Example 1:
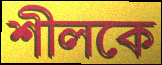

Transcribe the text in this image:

শীলকে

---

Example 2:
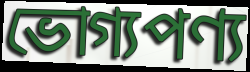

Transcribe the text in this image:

ভোগ্যপণ্য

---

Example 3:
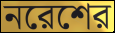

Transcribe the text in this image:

নরেশের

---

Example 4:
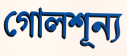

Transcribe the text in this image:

গোলশূন্য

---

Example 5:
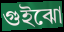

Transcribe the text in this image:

গুইঝো